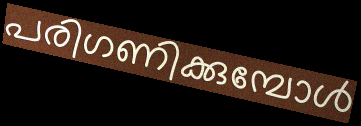
പരിഗണിക്കുമ്പോൾ